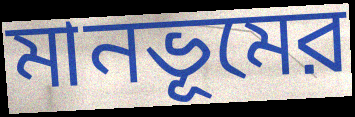
মানভূমের